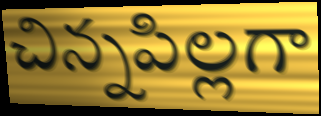
చిన్నపిల్లగా